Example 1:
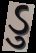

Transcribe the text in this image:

ડુ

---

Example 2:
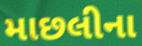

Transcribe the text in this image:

માછલીના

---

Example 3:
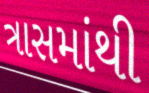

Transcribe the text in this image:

ત્રાસમાંથી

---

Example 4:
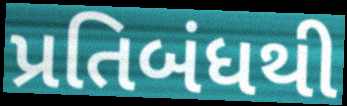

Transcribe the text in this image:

પ્રતિબંધથી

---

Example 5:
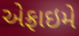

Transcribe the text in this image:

એફ્રાઇમે